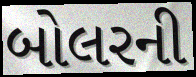
બોલરની